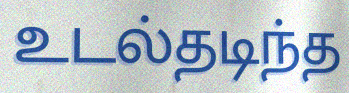
உடல்தடிந்த